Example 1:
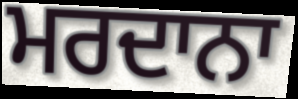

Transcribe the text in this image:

ਮਰਦਾਨਾ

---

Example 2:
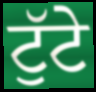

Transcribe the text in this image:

ਟੁੱਟੇ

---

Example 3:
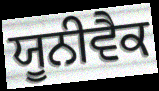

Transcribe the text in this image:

ਯੂਨੀਵੈਕ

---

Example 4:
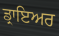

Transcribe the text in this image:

ਡ੍ਰਾਇਅਰ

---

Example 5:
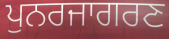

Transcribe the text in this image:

ਪੁਨਰਜਾਗਰਣ